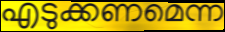
എടുക്കണമെന്ന